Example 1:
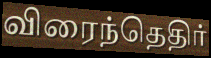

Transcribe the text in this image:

விரைந்தெதிர்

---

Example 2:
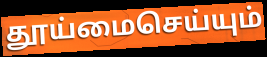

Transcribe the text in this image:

தூய்மைசெய்யும்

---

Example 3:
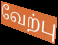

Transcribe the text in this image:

வேற்பு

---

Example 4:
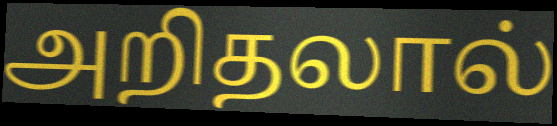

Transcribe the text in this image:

அறிதலால்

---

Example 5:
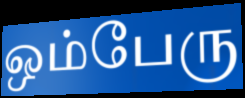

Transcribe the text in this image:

ஒம்பேரு